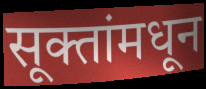
सूक्तांमधून